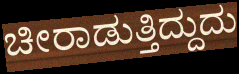
ಚೀರಾಡುತ್ತಿದ್ದುದು